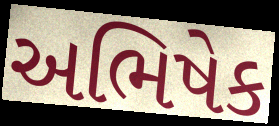
અભિષેક